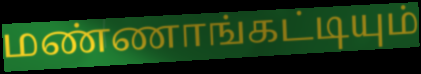
மண்ணாங்கட்டியும்